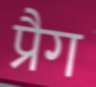
प्रैग